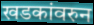
खडकांवरुन